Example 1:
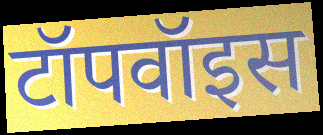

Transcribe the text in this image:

टॉपवॉइस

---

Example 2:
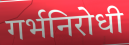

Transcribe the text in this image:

गर्भनिरोधी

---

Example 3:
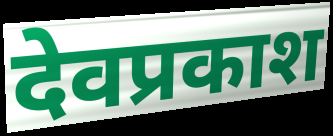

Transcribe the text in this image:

देवप्रकाश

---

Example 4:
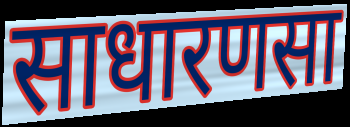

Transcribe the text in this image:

साधारणसा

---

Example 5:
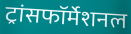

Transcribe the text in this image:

ट्रांसफॉर्मेशनल